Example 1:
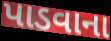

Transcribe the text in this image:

પાડવાના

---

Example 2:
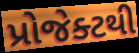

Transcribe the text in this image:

પ્રોજેક્ટથી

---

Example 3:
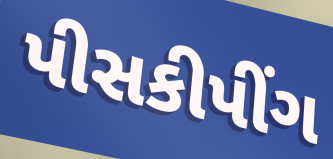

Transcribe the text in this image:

પીસકીપીંગ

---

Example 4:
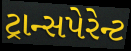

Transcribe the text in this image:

ટ્રાન્સપેરેન્ટ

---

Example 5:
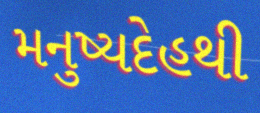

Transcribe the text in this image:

મનુષ્યદેહથી